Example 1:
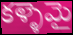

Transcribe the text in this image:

కళ్ళెమై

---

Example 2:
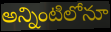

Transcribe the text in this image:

అన్నింటిలోనూ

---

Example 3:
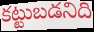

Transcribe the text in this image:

కట్టుబడనిది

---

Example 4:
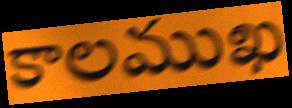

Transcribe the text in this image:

కాలముఖ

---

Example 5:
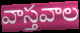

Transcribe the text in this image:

వాస్తవాల